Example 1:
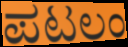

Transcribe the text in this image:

ಪಟಲಂ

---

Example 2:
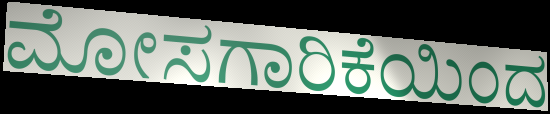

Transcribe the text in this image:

ಮೋಸಗಾರಿಕೆಯಿಂದ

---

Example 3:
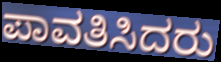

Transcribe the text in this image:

ಪಾವತಿಸಿದರು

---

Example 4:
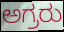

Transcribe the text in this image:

ಅಗ್ರರು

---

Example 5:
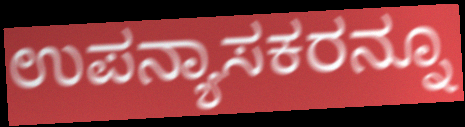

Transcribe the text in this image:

ಉಪನ್ಯಾಸಕರನ್ನೂ